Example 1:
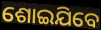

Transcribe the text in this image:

ଶୋଇଯିବେ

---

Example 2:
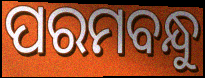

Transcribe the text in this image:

ପରମବନ୍ଧୁ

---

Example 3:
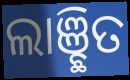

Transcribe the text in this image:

ଲାଞ୍ଛିତ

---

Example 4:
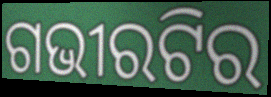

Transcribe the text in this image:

ଗଭୀରଟିର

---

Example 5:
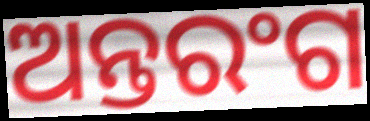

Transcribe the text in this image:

ଅନ୍ତରଂଗ